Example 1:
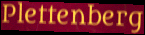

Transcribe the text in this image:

Plettenberg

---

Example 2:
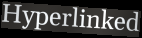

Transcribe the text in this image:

Hyperlinked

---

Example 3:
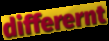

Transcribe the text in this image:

differernt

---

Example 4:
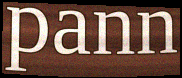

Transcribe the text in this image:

pann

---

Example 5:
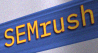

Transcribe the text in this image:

SEMrush